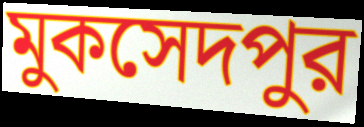
মুকসেদপুর